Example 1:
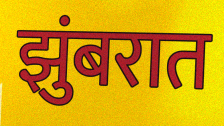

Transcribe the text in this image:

झुंबरात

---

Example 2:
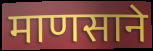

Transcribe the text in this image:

माणसाने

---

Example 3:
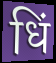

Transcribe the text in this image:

धिं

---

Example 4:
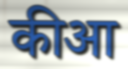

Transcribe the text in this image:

कीआ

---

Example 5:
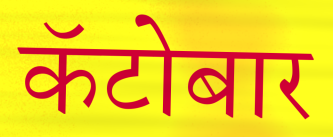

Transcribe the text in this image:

कॅटोबार